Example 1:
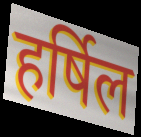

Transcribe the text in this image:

हर्षिल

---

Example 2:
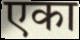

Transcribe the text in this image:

एका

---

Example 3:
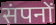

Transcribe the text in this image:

संपनों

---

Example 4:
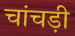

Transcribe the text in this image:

चांचड़ी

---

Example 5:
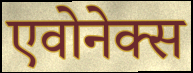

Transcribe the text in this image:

एवोनेक्स